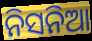
ନିସନିଆ